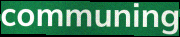
communing